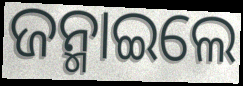
ଜନ୍ମାଇଲେ